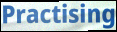
Practising